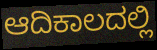
ಆದಿಕಾಲದಲ್ಲಿ